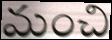
మంచి